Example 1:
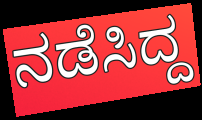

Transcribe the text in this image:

ನಡೆಸಿದ್ದ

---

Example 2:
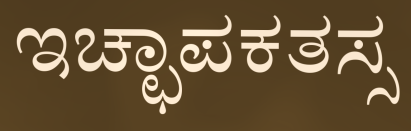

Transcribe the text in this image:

ಇಚ್ಛಾಪಕತಸ್ಸ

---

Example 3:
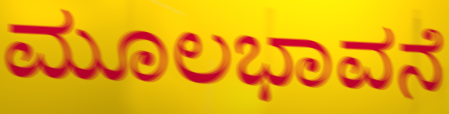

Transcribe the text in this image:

ಮೂಲಭಾವನೆ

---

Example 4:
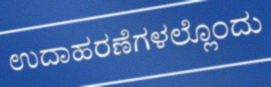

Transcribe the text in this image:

ಉದಾಹರಣೆಗಳಲ್ಲೊಂದು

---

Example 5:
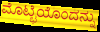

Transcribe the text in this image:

ಮೊಟ್ಟೆಯೊಂದನ್ನು